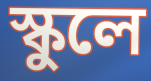
স্কুলে